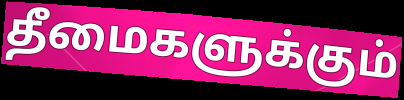
தீமைகளுக்கும்